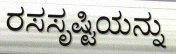
ರಸಸೃಷ್ಟಿಯನ್ನು